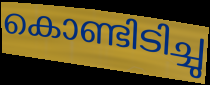
കൊണ്ടിടിച്ചു